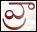
వ్రా